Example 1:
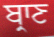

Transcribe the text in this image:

ਬ੍ਰਾਣ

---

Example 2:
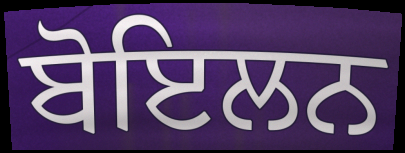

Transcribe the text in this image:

ਬੋਇਲਨ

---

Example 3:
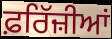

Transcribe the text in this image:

ਫ਼ਰਿੱਜ਼ੀਆਂ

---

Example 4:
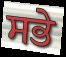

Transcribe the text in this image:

ਸਭੇ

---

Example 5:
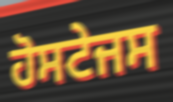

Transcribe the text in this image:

ਹੋਸਟੇਜਸ